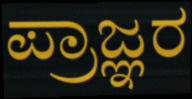
ಪ್ರಾಜ್ಞರ